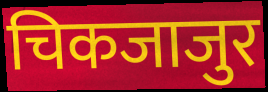
चिकजाजुर